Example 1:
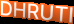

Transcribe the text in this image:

DHRUTI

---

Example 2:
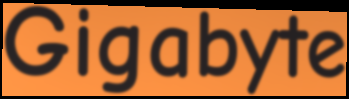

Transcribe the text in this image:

Gigabyte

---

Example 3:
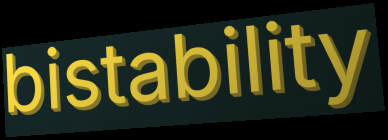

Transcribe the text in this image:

bistability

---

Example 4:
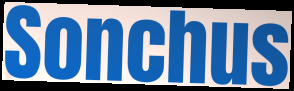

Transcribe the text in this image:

Sonchus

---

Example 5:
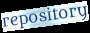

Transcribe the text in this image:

repository